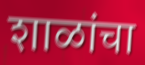
शाळांचा